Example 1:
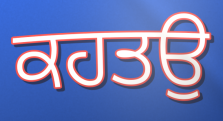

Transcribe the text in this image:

ਕਹਤਉ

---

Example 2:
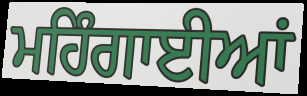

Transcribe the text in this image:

ਮਹਿੰਗਾਈਆਂ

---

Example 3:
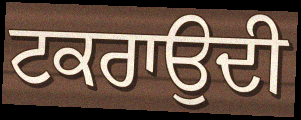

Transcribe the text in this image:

ਟਕਰਾਉਦੀ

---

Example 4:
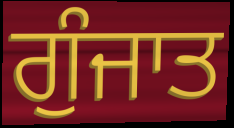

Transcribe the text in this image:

ਗੁੰਜਾਤ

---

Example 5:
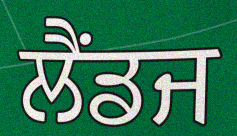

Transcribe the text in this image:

ਲੈਂਡਜ